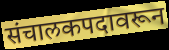
संचालकपदावरून